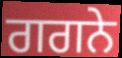
ਗਗਨੇ